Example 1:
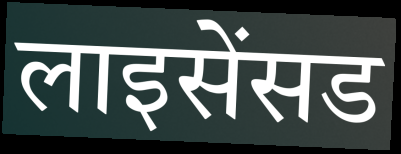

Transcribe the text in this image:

लाइसेंसड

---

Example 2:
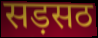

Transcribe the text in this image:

सड़सठ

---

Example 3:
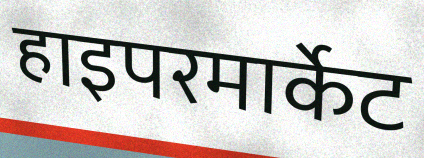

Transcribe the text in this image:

हाइपरमार्केट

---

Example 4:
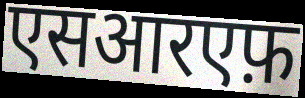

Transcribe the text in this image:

एसआरएफ़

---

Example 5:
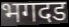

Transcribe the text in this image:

भगदड